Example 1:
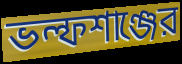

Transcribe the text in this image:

ভল্ফশাঞ্জের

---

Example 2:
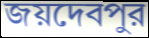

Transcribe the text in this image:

জয়দেবপুর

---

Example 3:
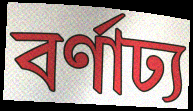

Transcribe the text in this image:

বর্ণাঢ্য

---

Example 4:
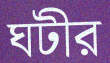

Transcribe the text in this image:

ঘটীর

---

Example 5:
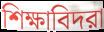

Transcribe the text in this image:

শিক্ষাবিদরা